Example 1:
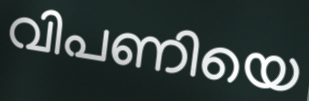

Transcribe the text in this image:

വിപണിയെ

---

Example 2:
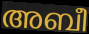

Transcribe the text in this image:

അബീ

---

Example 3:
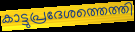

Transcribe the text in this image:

കാട്ടുപ്രദേശത്തെത്തി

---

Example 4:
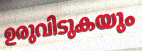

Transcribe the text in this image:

ഉരുവിടുകയും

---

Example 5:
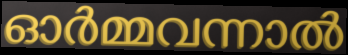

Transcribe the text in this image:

ഓർമ്മവന്നാൽ